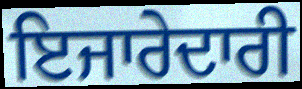
ਇਜਾਰੇਦਾਰੀ